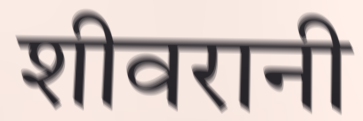
शीवरानी